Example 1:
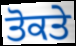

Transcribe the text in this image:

ਤੋਕਤੇ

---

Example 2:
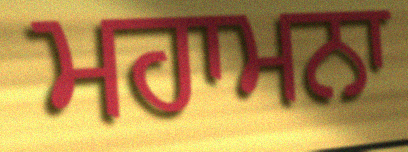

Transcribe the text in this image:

ਮਹਾਮਨਾ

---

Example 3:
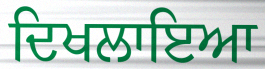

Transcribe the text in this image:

ਦਿਖਲਾਇਆ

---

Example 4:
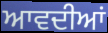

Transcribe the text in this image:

ਆਵਦੀਆਂ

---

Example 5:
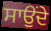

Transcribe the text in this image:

ਸਾਉਂਦੇ